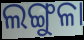
ଲଙ୍ଗୁଳା